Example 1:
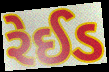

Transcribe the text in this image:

રેઈડ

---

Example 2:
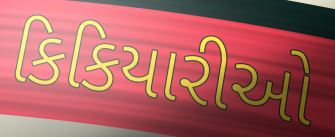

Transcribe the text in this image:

કિકિયારીઓ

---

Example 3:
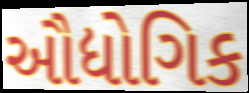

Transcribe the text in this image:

ઔદ્યોગિક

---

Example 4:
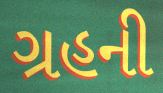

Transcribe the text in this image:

ગ્રહની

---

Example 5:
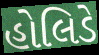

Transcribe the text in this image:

હોલિડે